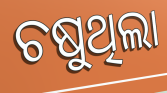
ଚଷୁଥିଲା